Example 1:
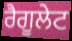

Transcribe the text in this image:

ਰੈਗੂਲੇਟ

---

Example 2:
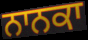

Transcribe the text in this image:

ਨਾਨਕਾ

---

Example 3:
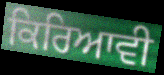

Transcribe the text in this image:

ਕਿਰਿਆਵੀ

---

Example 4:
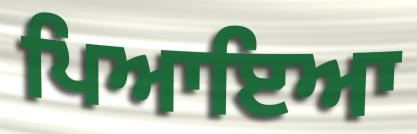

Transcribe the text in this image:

ਪਿਆਇਆ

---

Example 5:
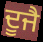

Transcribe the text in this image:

ਦੂਜੈ